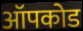
ऑपकोड